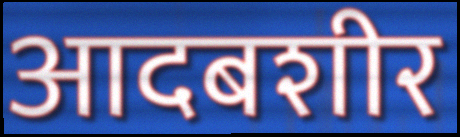
आदबशीर